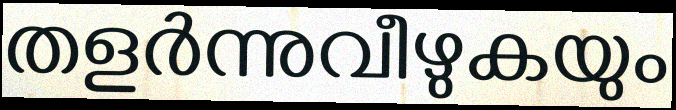
തളർന്നുവീഴുകയും